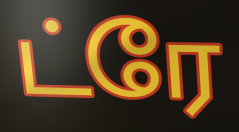
ட்ரே